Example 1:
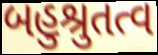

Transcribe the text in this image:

બહુશ્રુતત્વ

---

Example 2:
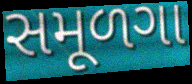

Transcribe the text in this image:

સમૂળગા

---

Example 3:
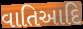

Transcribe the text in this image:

વાતિઆદિ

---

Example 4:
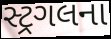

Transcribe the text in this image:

સ્ટ્રગલના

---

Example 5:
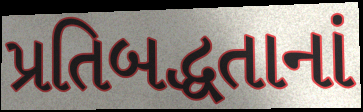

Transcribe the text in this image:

પ્રતિબદ્ધતાનાં